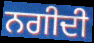
ਨਗੀਦੀ